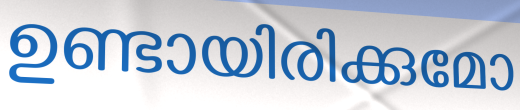
ഉണ്ടായിരിക്കുമോ